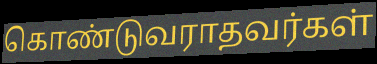
கொண்டுவராதவர்கள்